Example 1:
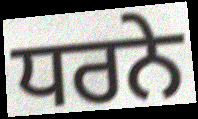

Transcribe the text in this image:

ਧਰਨੇ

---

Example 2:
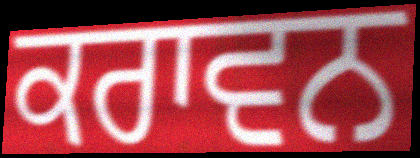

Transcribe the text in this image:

ਕਰਾਵਨ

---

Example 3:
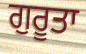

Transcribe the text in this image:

ਗੁਰੂਤਾ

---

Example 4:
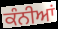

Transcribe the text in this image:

ਕੰਨੀਆਂ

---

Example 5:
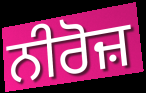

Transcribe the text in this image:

ਨੀਰੋਜ਼